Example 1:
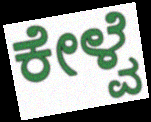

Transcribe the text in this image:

ಕೇಳ್ವೆ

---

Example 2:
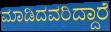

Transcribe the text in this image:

ಮಾಡಿದವರಿದ್ದಾರೆ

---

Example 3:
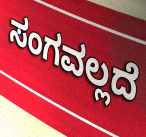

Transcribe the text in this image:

ಸಂಗವಲ್ಲದೆ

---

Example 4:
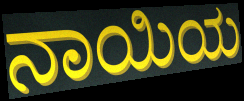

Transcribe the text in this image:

ನಾಯಿಯ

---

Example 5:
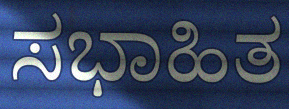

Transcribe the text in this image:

ಸಭಾಹಿತ